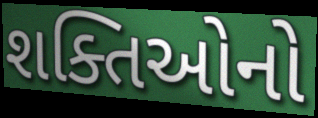
શક્તિઓનો